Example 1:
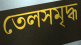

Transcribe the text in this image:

তেলসমৃদ্ধ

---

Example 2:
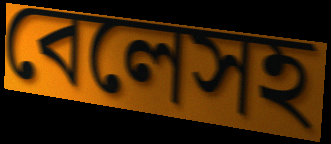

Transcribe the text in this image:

বেলেসহ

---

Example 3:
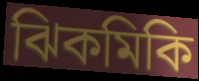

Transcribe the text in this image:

ঝিকমিকি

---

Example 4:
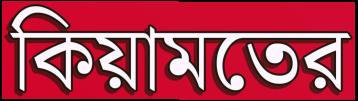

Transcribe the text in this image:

কিয়ামতের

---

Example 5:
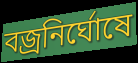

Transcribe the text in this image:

বজ্রনির্ঘোষে